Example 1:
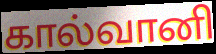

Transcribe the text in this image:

கால்வானி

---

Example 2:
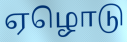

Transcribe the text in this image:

ஏழொடு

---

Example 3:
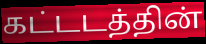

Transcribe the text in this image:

கட்டடத்தின்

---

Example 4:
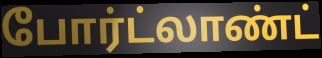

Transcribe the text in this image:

போர்ட்லாண்ட்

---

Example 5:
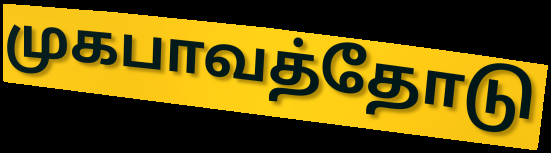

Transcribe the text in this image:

முகபாவத்தோடு